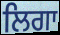
ਲਿਗਾ